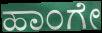
ಹಾಂಗೇ